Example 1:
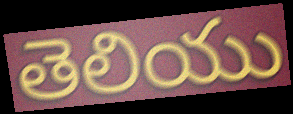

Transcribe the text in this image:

తెలియు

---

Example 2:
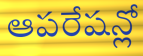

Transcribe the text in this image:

ఆపరేషన్లో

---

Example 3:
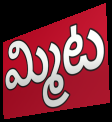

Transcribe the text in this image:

మ్మిట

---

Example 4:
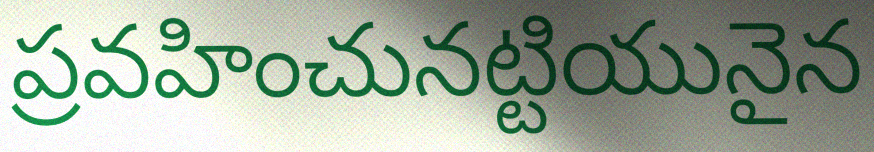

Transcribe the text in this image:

ప్రవహించునట్టియునైన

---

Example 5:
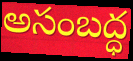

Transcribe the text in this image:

అసంబద్ధ